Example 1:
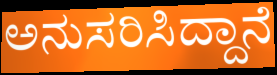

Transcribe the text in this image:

ಅನುಸರಿಸಿದ್ದಾನೆ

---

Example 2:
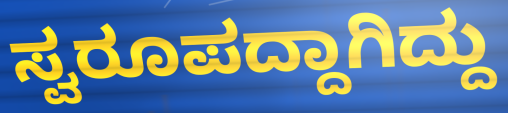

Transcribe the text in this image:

ಸ್ವರೂಪದ್ದಾಗಿದ್ದು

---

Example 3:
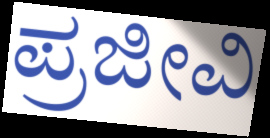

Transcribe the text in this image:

ಪ್ರಜೀವಿ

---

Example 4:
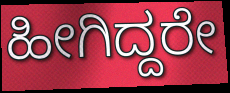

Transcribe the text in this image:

ಹೀಗಿದ್ದರೇ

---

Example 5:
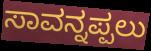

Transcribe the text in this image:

ಸಾವನ್ನಪ್ಪಲು